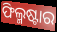
ଫିଲ୍ମଷ୍ଟାର